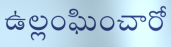
ఉల్లంఘించారో